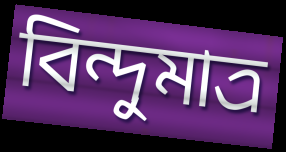
বিন্দুমাত্র